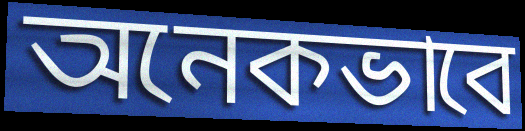
অনেকভাবে